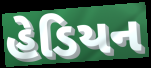
હેડિયન